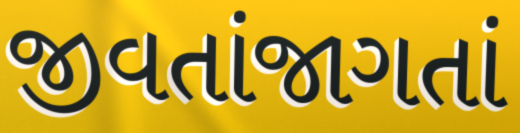
જીવતાંજાગતાં